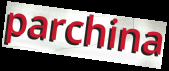
parchina